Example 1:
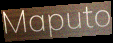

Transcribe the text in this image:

Maputo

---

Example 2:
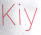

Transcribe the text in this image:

Kiy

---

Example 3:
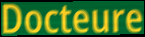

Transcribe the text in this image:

Docteure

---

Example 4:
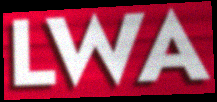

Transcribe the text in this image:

LWA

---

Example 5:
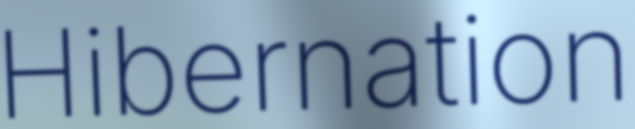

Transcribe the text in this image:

Hibernation